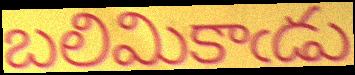
బలిమికాఁడు